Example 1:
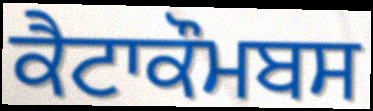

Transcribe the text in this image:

ਕੈਟਾਕੌਮਬਸ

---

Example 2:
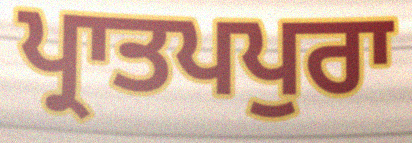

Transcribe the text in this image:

ਪ੍ਰਾਤਪਪੁਰਾ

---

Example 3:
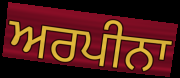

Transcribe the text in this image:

ਅਰਪੀਨਾ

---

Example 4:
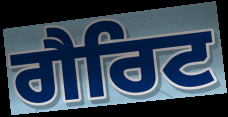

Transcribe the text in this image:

ਗੈਰਿਟ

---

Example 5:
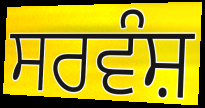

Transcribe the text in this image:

ਸਰਵੰਸ਼